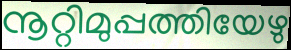
നൂറ്റിമുപ്പത്തിയേഴു